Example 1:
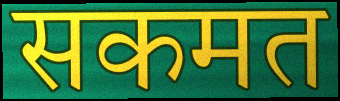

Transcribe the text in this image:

सकमत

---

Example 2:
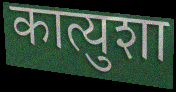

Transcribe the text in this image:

कात्युशा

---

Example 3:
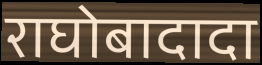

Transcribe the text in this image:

राघोबादादा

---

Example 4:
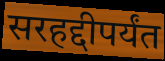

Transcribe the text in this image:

सरहद्दीपर्यंत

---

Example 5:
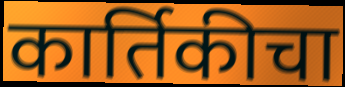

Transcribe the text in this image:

कार्तिकीचा